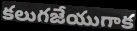
కలుగజేయుగాక